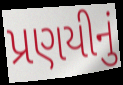
પ્રણયીનું